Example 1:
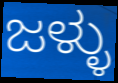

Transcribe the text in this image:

ಜಳ್ಳು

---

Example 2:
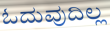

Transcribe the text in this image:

ಓದುವುದಿಲ್ಲ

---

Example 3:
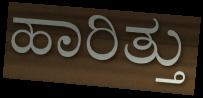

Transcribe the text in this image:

ಹಾರಿತ್ತು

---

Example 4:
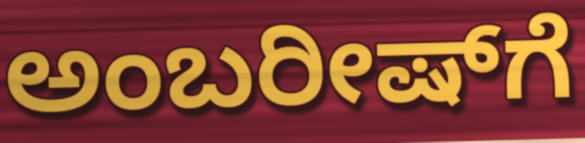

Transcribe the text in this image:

ಅಂಬರೀಷ್‌ಗೆ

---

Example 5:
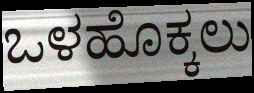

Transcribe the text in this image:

ಒಳಹೊಕ್ಕಲು